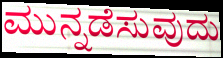
ಮುನ್ನಡೆಸುವುದು